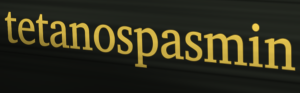
tetanospasmin